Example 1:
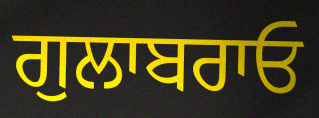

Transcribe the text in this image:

ਗੁਲਾਬਰਾਓ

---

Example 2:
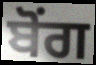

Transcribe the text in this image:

ਬੋਂਗ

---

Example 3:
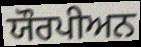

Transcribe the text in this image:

ਯੌਰਪੀਅਨ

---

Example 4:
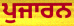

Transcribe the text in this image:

ਪੁਜਾਰਨ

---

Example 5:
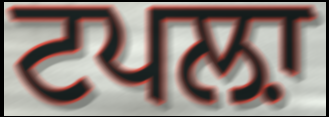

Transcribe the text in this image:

ਟਪਲ਼ਾ